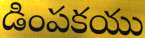
డింపకయు